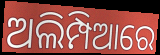
ଅଲିମ୍ପିଆରେ